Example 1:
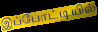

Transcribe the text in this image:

இப்போட்டியில்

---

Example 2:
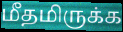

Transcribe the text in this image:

மீதமிருக்க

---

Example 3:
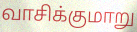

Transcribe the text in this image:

வாசிக்குமாறு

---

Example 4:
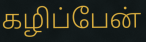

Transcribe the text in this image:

கழிப்பேன்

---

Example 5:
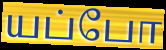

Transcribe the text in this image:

யப்போ